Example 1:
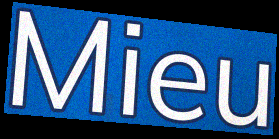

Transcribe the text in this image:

Mieu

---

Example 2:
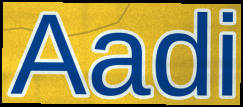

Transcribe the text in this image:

Aadi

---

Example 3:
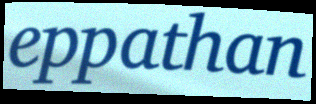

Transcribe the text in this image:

eppathan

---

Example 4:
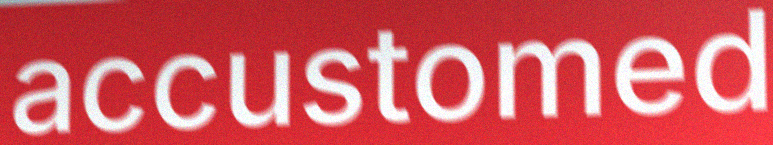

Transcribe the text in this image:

accustomed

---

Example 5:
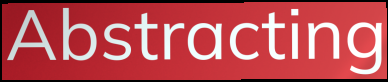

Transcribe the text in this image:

Abstracting